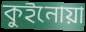
কুইনোয়া